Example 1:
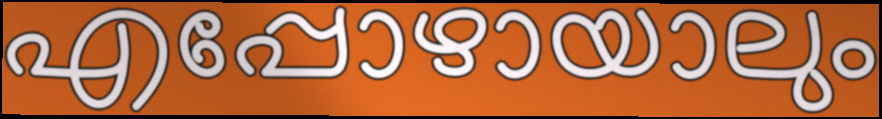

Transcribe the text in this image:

എപ്പോഴായാലും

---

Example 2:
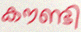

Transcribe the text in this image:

കൗണ്ടി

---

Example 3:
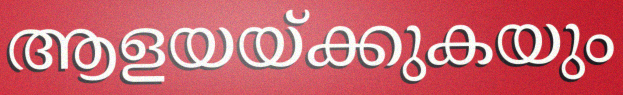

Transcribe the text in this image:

ആളയയ്ക്കുകയും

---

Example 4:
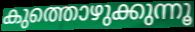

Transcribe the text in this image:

കുത്തൊഴുക്കുന്നൂ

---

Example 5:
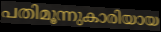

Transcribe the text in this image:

പതിമൂന്നുകാരിയായ